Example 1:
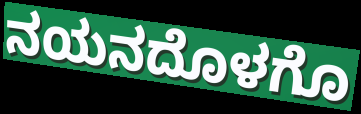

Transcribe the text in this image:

ನಯನದೊಳಗೊ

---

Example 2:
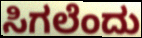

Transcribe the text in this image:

ಸಿಗಲೆಂದು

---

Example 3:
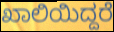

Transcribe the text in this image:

ಖಾಲಿಯಿದ್ದರೆ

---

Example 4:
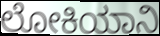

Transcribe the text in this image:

ಲೋಕಿಯಾನಿ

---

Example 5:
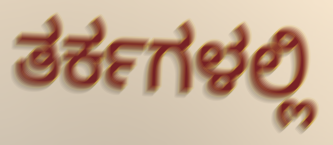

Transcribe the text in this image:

ತರ್ಕಗಳಲ್ಲಿ